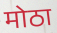
मोठा